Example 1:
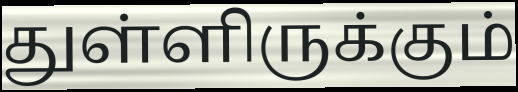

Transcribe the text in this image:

துள்ளிருக்கும்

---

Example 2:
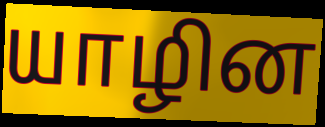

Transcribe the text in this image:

யாழின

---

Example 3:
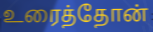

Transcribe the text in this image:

உரைத்தோன்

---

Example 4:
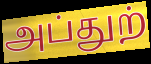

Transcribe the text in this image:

அப்துற்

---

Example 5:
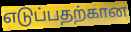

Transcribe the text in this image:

எடுப்பதற்கான